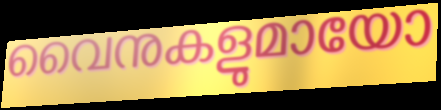
വൈനുകളുമായോ